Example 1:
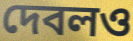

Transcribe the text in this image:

দেবলও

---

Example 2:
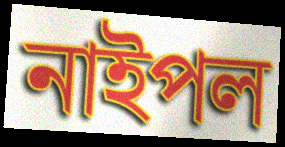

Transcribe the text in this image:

নাইপল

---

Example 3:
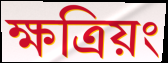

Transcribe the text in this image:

ক্ষত্রিয়ং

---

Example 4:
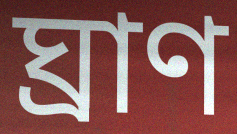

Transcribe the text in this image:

ঘ্রাণ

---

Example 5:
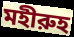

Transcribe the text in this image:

মহীরুহ